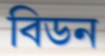
বিডন